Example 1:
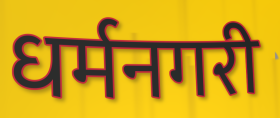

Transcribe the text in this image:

धर्मनगरी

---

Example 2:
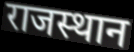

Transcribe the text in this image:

राजस्थान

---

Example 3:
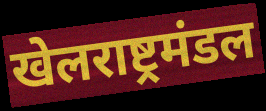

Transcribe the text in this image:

खेलराष्ट्रमंडल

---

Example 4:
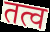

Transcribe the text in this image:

तत्व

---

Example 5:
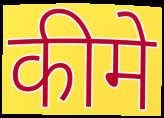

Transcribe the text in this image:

कीमे